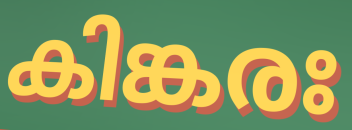
കിങ്കരഃ